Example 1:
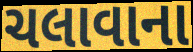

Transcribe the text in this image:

ચલાવાના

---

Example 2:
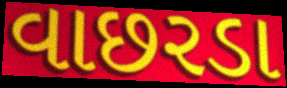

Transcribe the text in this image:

વાછરડા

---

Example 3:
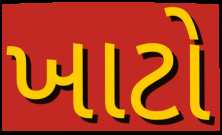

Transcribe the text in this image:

ખાટો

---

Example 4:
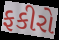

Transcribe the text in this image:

ફકીરો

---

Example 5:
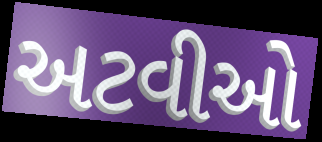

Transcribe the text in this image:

અટવીઓ